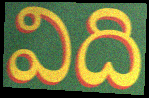
విది